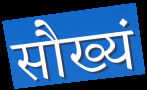
सौख्यं